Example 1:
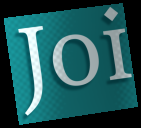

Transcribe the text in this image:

Joi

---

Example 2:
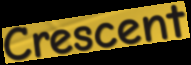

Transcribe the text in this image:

Crescent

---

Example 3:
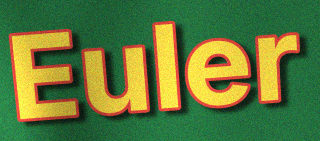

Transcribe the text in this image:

Euler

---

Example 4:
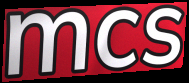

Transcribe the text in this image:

mcs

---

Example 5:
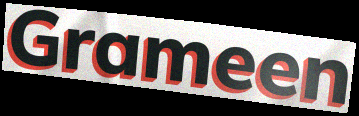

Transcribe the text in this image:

Grameen